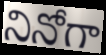
నినోగా